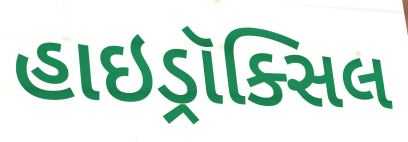
હાઇડ્રૉક્સિલ